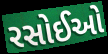
રસોઈઓ